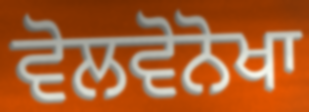
ਵੋਲਵੋਨੋਖਾ